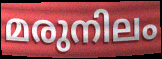
മരുനിലം